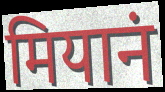
मियानं